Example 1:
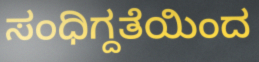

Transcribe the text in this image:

ಸಂಧಿಗ್ದತೆಯಿಂದ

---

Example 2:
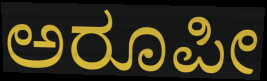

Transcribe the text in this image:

ಅರೂಪೀ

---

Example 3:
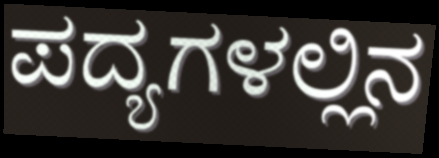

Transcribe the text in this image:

ಪದ್ಯಗಳಲ್ಲಿನ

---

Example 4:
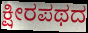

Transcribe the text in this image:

ಕ್ಷೀರಪಥದ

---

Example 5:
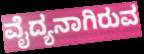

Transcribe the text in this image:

ವೈದ್ಯನಾಗಿರುವ